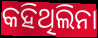
କହିଥିଲିନା